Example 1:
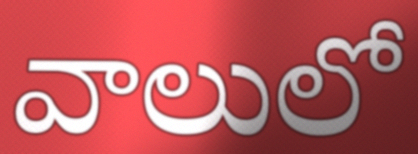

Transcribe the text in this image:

వాలులో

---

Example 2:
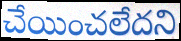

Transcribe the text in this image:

చేయించలేదని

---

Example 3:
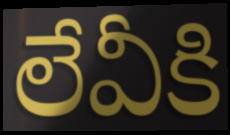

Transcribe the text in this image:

లేవీకి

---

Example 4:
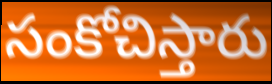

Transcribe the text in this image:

సంకోచిస్తారు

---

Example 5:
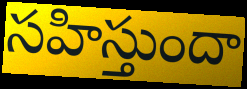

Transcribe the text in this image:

సహిస్తుందా